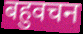
बहुवचन